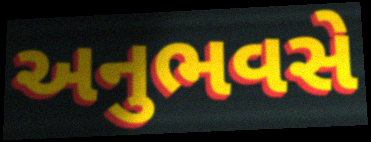
અનુભવસે